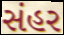
સંહર